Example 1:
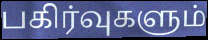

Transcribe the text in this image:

பகிர்வுகளும்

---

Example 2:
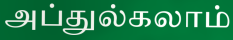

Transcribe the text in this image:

அப்துல்கலாம்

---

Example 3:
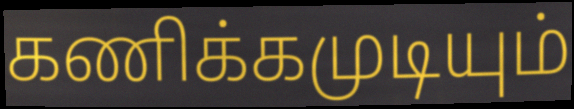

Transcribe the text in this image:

கணிக்கமுடியும்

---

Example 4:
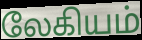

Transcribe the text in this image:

லேகியம்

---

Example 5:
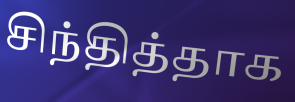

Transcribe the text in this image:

சிந்தித்தாக